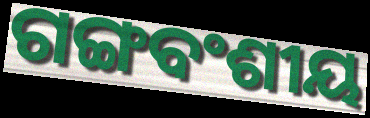
ଗଙ୍ଗବଂଶୀୟ